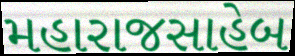
મહારાજસાહેબ